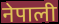
नेपाली